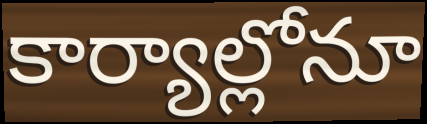
కార్యాల్లోనూ